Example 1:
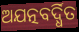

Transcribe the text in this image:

ଅଯତ୍ନବର୍ଦ୍ଧିତ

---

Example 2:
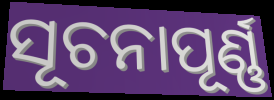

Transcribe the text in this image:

ସୂଚନାପୂର୍ଣ୍ଣ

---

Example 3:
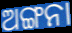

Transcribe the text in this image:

ଅଙ୍ଗନା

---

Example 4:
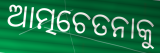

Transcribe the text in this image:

ଆତ୍ମଚେତନାକୁ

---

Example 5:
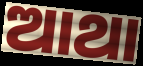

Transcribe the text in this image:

ଆଥା